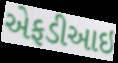
એફડીઆઇ